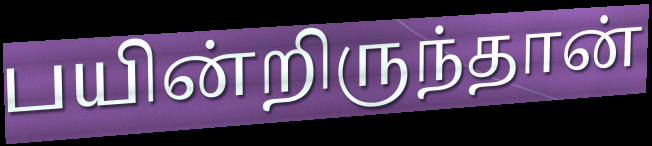
பயின்றிருந்தான்